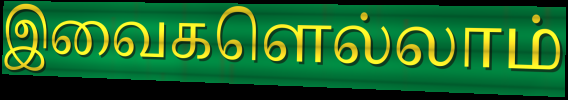
இவைகளெல்லாம்